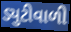
ડ્યુટીવાળી